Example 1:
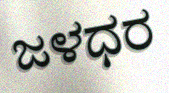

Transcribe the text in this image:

ಜಳಧರ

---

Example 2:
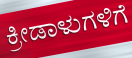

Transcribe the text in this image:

ಕ್ರೀಡಾಳುಗಳಿಗೆ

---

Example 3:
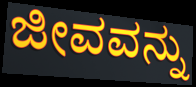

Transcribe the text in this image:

ಜೀವವನ್ನು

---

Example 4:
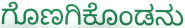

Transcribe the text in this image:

ಗೊಣಗಿಕೊಂಡನು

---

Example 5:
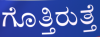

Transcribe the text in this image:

ಗೊತ್ತಿರುತ್ತೆ